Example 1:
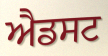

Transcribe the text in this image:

ਐਡਸਟ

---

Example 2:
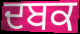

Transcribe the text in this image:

ਦਬਕ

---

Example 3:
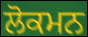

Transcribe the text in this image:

ਲੋਕਮਨ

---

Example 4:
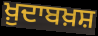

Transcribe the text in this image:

ਖ਼ੁਦਾਬਖ਼ਸ਼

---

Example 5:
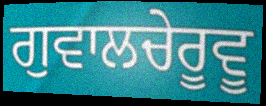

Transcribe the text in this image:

ਗੁਵਾਲਚੇਰੂਵੂ